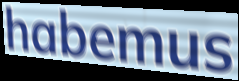
habemus